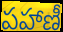
పహాణీ